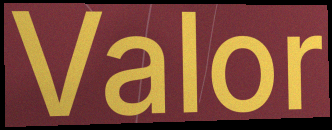
Valor